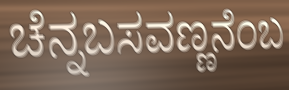
ಚೆನ್ನಬಸವಣ್ಣನೆಂಬ